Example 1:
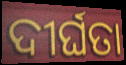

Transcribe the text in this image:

ଦୀର୍ଘତା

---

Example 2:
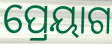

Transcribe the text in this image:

ପ୍ରେୟାଗ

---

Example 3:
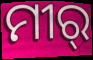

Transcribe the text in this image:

ମୀର୍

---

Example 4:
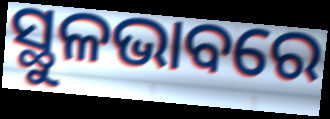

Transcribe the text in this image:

ସ୍ଥୁଳଭାବରେ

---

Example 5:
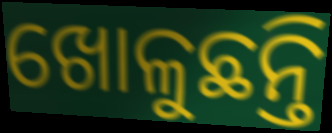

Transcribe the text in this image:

ଖୋଳୁଛନ୍ତି